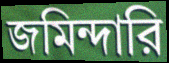
জমিন্দারি